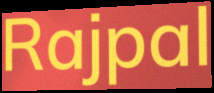
Rajpal